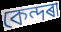
কেন্দৰা